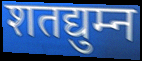
शतद्युम्न